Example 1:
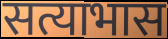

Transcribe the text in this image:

सत्याभास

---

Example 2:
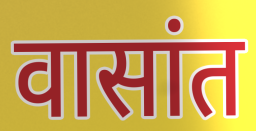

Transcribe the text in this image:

वासांत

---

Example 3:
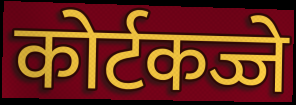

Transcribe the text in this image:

कोर्टकज्जे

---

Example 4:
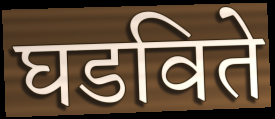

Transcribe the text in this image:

घडविते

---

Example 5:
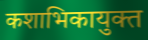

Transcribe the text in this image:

कशाभिकायुक्त